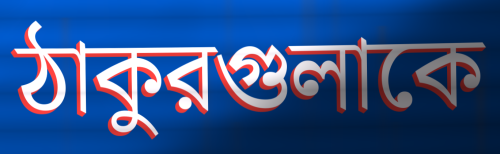
ঠাকুরগুলাকে